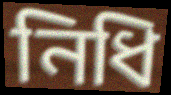
নিধি